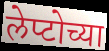
लेप्टोच्या